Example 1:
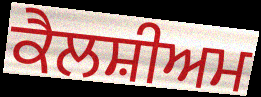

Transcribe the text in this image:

ਕੈਲਸ਼ੀਅਮ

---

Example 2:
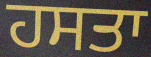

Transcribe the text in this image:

ਹਸਤਾ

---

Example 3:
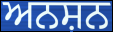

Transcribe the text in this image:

ਅਨਸ਼ਨ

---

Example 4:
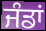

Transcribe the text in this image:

ਜੰਡਾਂ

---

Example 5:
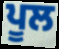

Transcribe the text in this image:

ਪੂਲ